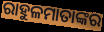
ରାହୁଳମାତାଙ୍କର